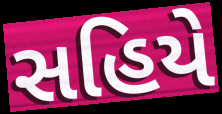
સહિયે